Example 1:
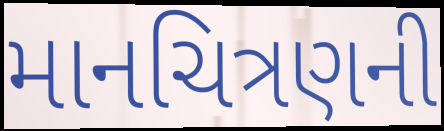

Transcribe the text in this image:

માનચિત્રણની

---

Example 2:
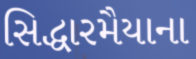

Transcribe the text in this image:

સિદ્ધારમૈયાના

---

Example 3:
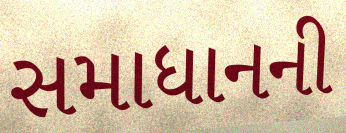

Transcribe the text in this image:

સમાધાનની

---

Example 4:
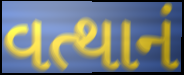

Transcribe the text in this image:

વત્થાનં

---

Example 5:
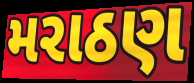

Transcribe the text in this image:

મરાઠણ